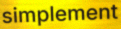
simplement